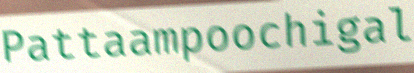
Pattaampoochigal